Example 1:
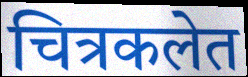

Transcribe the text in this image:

चित्रकलेत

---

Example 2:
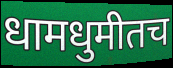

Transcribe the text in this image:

धामधुमीतच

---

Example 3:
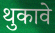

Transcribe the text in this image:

थुकावे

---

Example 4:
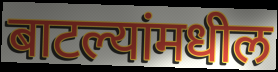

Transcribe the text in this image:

बाटल्यांमधील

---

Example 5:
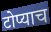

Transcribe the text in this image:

टोप्याच